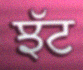
ਝੱਟ